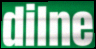
dilne